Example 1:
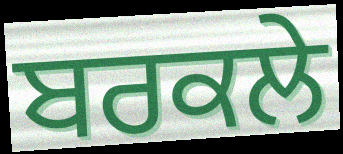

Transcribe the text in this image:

ਬਰਕਲੇ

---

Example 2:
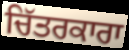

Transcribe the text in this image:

ਚਿੱਤਰਕਾਰਾ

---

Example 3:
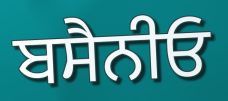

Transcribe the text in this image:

ਬਸੈਨੀਓ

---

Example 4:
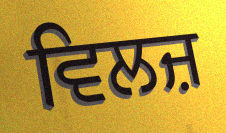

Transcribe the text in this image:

ਵਿਲਜ਼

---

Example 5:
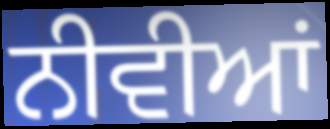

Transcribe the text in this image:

ਨੀਵੀਆਂ